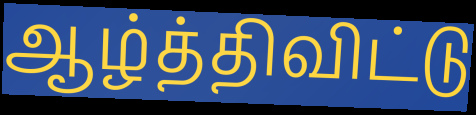
ஆழ்த்திவிட்டு